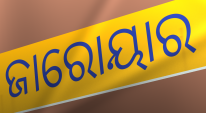
ଜାରୋୟାର